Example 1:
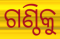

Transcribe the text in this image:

ଗଣ୍ଠିକୁ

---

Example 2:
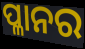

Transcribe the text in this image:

ପ୍ଳାନର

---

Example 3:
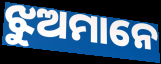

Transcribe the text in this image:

ଝୁଅମାନେ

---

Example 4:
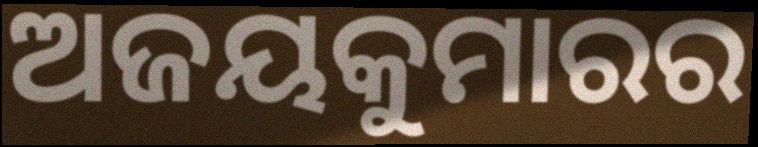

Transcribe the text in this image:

ଅଜୟକୁମାରର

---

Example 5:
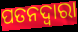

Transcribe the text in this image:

ପତନଦ୍ଵାରା